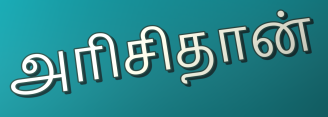
அரிசிதான்